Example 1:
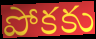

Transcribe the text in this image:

పోకకు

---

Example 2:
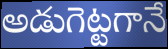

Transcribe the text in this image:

అడుగెట్టగానే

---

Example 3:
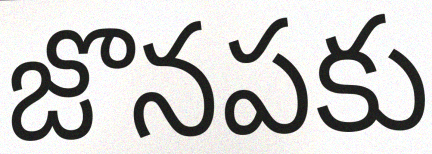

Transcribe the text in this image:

జొనపకు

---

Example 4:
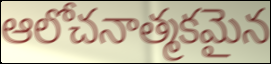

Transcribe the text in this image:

ఆలోచనాత్మకమైన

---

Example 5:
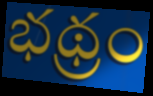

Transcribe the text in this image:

భథ్రం